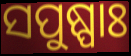
ସପୁଷ୍ପାଃ